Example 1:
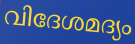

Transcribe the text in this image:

വിദേശമദ്യം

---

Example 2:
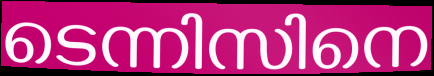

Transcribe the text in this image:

ടെന്നിസിനെ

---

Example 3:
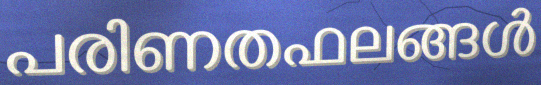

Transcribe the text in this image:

പരിണതഫലങ്ങൾ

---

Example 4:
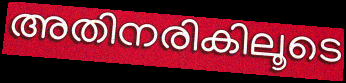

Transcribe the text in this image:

അതിനരികിലൂടെ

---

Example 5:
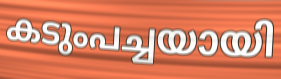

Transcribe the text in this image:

കടുംപച്ചയായി